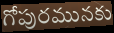
గోపురమునకు